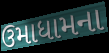
ઉમાધામના